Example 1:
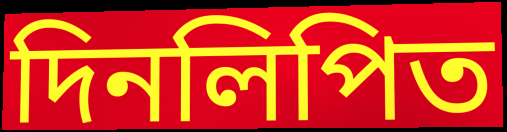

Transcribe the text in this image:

দিনলিপিত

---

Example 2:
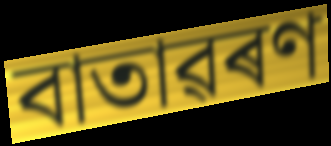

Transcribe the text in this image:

বাতাৱৰণ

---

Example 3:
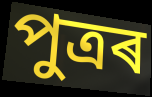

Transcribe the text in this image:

পুত্ৰৰ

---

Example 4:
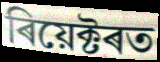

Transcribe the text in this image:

ৰিয়েক্টৰত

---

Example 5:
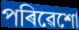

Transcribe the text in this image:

পৰিৱেশো